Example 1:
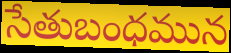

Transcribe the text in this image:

సేతుబంధమున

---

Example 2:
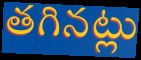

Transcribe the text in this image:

తగినట్లు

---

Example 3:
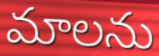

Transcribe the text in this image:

మాలను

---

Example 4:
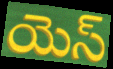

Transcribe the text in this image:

యెస్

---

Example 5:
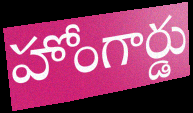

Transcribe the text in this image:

హోంగార్డు